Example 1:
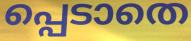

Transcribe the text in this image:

പ്പെടാതെ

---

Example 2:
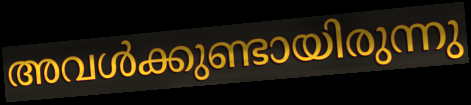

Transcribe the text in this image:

അവൾക്കുണ്ടായിരുന്നു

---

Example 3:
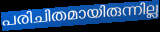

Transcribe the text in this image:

പരിചിതമായിരുന്നില്ല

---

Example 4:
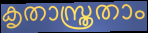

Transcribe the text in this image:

കൃതാസ്ത്രതാം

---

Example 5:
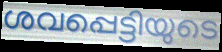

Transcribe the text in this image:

ശവപ്പെട്ടിയുടെ